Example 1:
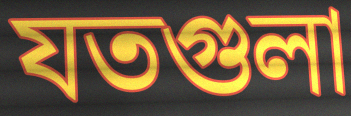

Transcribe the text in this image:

যতগুলা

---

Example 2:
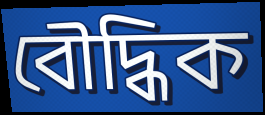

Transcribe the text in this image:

বৌদ্ধিক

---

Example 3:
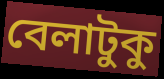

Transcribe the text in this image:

বেলাটুকু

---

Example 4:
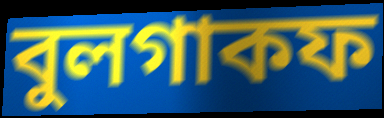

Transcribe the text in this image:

বুলগাকফ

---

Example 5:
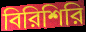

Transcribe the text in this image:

বিরিশিরি